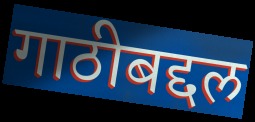
गाठीबद्दल